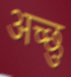
अच्छु